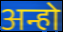
अन्हो